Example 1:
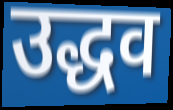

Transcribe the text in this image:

उद्धव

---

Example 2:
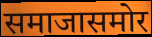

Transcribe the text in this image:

समाजासमोर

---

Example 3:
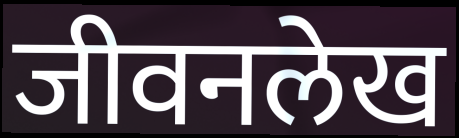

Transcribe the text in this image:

जीवनलेख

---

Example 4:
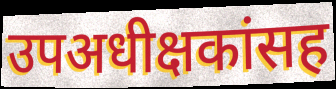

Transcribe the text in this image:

उपअधीक्षकांसह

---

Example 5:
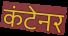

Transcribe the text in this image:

कंटेनर